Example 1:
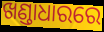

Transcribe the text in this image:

ଖଣ୍ଡାଧାରରେ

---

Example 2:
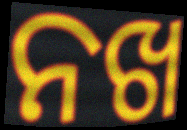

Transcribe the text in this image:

ନଖ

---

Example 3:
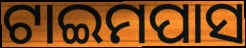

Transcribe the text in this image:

ଟାଇମପାସ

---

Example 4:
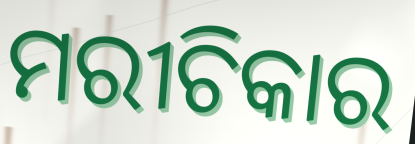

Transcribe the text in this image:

ମରୀଚିକାର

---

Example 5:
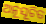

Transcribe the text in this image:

ଅନୂସୂଚିତ